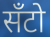
सँटो